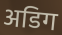
अडिग